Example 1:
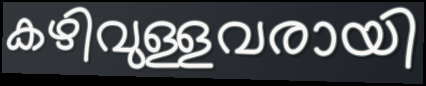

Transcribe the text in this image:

കഴിവുള്ളവരായി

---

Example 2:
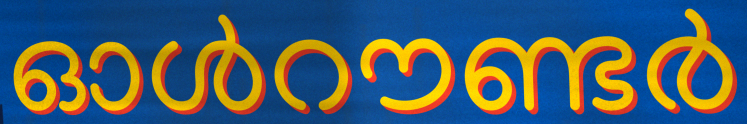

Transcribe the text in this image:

ഓൾറൗണ്ടർ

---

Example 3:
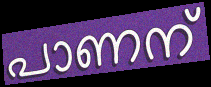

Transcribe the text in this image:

പാണന്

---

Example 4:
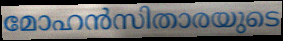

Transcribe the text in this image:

മോഹൻസിതാരയുടെ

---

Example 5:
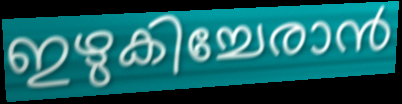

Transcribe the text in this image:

ഇഴുകിച്ചേരാൻ